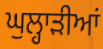
ਘੁਲ੍ਹਾੜੀਆਂ